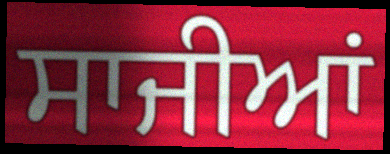
ਸਾਜੀਆਂ